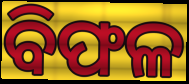
ବିଫଳ